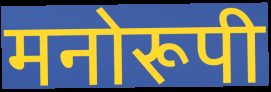
मनोरूपी